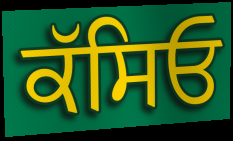
ਕੱਸਿਓ